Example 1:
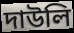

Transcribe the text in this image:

দাউলি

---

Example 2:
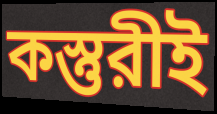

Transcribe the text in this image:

কস্তুরীই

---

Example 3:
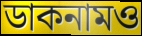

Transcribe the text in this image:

ডাকনামও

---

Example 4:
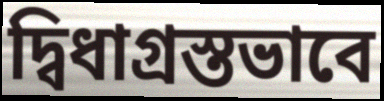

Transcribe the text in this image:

দ্বিধাগ্রস্তভাবে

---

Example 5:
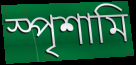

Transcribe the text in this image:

স্পৃশামি